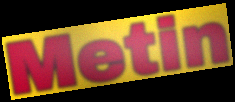
Metin